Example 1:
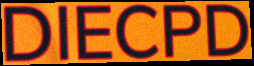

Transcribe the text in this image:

DIECPD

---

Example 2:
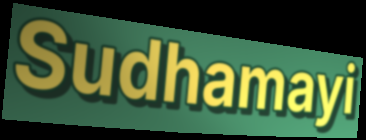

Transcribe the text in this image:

Sudhamayi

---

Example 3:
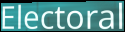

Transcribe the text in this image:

Electoral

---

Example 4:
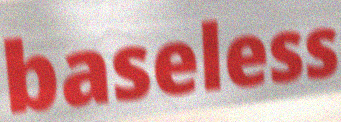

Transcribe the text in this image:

baseless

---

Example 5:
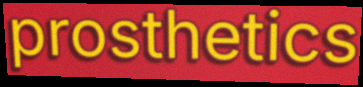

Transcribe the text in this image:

prosthetics